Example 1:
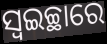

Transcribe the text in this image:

ସ୍ୱଇଚ୍ଛାରେ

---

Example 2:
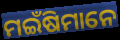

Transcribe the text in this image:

ମଇଁଷିମାନେ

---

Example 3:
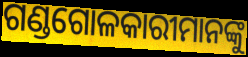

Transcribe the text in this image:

ଗଣ୍ଡଗୋଳକାରୀମାନଙ୍କୁ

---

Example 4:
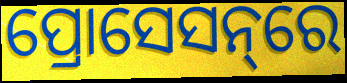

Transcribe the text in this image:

ପ୍ରୋସେସନ୍‌ରେ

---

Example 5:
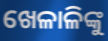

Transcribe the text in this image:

ଖେଳାଳିଙ୍କୁ